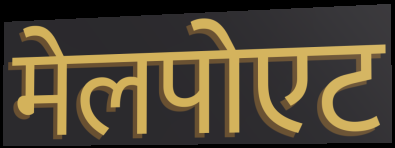
मेलपोएट